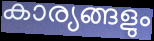
കാര്യങ്ങളും